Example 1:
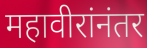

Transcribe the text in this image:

महावीरांनंतर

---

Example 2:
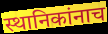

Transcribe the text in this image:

स्थानिकांनाच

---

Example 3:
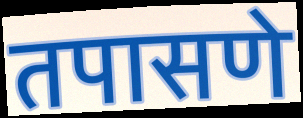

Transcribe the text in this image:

तपासणे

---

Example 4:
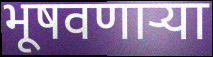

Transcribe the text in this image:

भूषवणाऱ्या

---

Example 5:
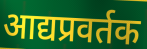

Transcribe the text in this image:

आद्यप्रवर्तक